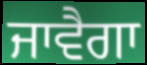
ਜਾਵੈਗਾ